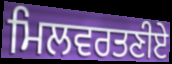
ਮਿਲਵਰਤਣੀਏ